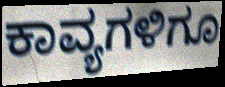
ಕಾವ್ಯಗಳಿಗೂ